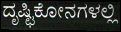
ದೃಷ್ಟಿಕೋನಗಳಲ್ಲಿ